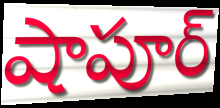
షాపూర్